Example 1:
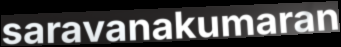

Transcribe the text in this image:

saravanakumaran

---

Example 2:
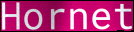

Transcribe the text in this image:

Hornet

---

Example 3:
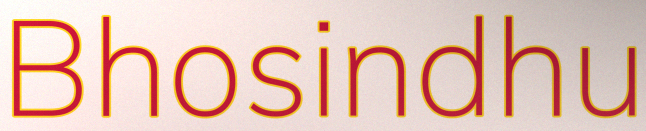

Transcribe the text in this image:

Bhosindhu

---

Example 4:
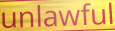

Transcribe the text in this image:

unlawful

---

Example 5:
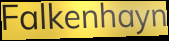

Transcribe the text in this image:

Falkenhayn